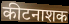
कीटनाशक